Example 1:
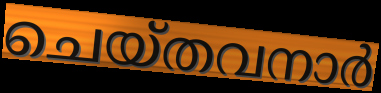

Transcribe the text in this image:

ചെയ്തവനാർ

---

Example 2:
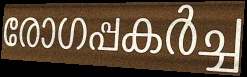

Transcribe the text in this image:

രോഗപ്പകർച്ച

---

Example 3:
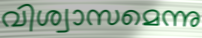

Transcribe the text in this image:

വിശ്വാസമെന്നു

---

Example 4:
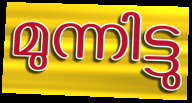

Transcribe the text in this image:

മുന്നിട്ടു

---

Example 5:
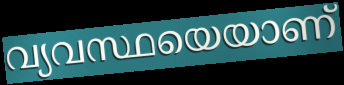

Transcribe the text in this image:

വ്യവസ്ഥയെയാണ്